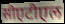
सीएटीएल